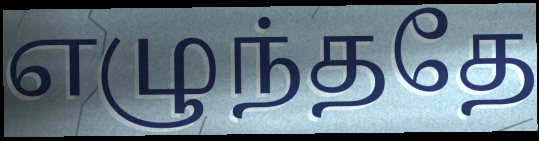
எழுந்ததே